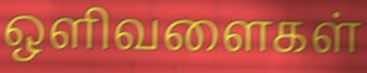
ஒளிவளைகள்